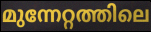
മുന്നേറ്റത്തിലെ